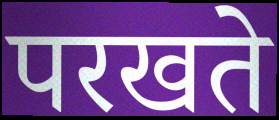
परखते